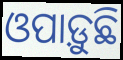
ଓପାଡ଼ୁଛି